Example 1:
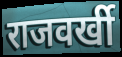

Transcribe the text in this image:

राजवर्खी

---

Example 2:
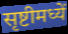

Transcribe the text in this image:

सृष्टीमध्यें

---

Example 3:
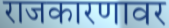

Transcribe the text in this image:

राजकारणावर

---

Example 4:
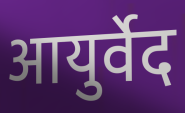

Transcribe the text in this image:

आयुर्वेद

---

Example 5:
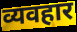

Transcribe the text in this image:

व्यवहार